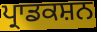
ਪ੍ਰਾਡਕਸ਼ਨ